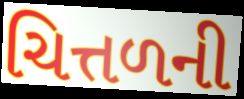
ચિત્તળની